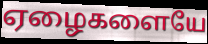
ஏழைகளையே